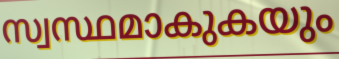
സ്വസ്ഥമാകുകയും